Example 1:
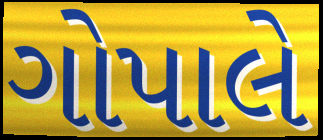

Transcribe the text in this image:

ગોપાલે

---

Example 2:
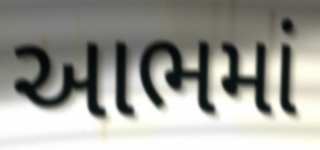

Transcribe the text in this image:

આભમાં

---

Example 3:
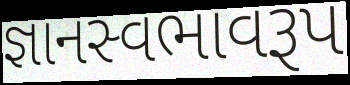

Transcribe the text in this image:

જ્ઞાનસ્વભાવરૂપ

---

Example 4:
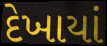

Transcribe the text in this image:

દેખાયાં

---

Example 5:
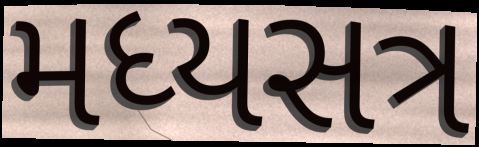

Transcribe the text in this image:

મધ્યસત્ર